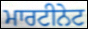
ਮਾਰਟੀਨੇਟ